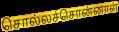
சொல்லச்சொன்னாள்